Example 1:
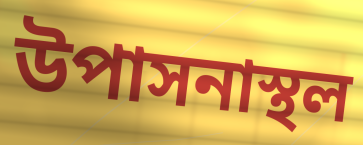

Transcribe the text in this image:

উপাসনাস্থল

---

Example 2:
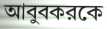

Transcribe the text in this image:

আবুবকরকে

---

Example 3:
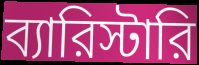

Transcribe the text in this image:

ব্যারিস্টারি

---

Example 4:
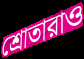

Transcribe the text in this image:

শ্রোতারাও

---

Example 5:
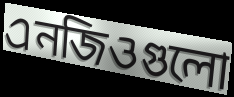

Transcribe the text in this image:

এনজিওগুলো